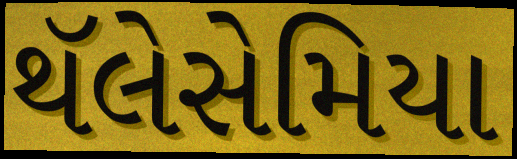
થૅલેસેમિયા